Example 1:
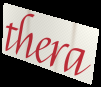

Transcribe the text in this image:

thera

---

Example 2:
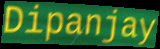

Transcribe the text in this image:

Dipanjay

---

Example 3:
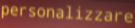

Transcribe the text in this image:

personalizzare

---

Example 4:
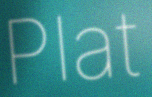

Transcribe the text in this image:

Plat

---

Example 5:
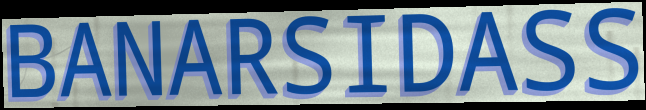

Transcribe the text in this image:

BANARSIDASS